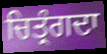
ਚਿਤ੍ਰੰਗਦਾ